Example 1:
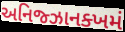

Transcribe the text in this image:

અનિજ્ઝાનક્ખમં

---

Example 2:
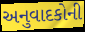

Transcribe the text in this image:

અનુવાદકોની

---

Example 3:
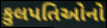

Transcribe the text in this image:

કુલપતિઓનો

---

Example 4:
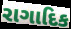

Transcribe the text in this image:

રાગાદિક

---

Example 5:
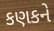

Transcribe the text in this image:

કણકને